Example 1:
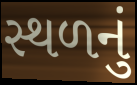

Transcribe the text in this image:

સ્થળનું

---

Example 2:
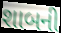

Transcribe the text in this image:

શાબની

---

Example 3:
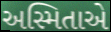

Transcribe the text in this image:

અસ્મિતાએ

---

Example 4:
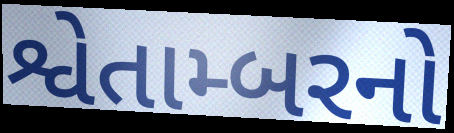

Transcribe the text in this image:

શ્વેતામ્બરનો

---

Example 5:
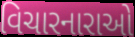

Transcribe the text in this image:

વિચારનારાઓ